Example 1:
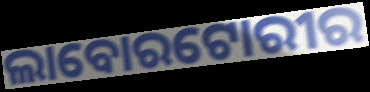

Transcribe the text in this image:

ଲାବୋରଟୋରୀର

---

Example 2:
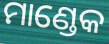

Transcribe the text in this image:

ମାଣ୍ଡେକ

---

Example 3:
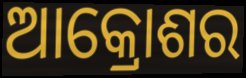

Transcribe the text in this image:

ଆକ୍ରୋଶର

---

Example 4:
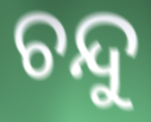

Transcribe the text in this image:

ଚନ୍ଦୁ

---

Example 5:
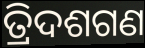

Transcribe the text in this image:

ତ୍ରିଦଶଗଣ